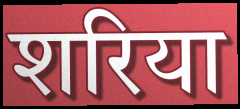
शरिया